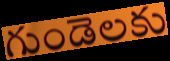
గుండెలకు